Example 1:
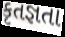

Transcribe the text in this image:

કૃતજ્ઞતા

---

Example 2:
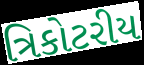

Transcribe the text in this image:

ત્રિકોટરીય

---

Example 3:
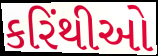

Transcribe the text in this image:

કરિંથીઓ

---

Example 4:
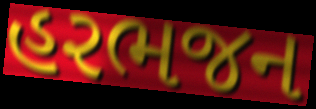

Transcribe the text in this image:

હરભજન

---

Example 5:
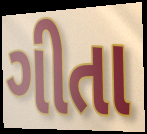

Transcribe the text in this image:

ગીતા